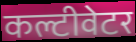
कल्टीवेटर